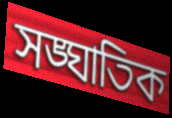
সঙ্ঘাতিক